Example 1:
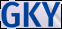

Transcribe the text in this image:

GKY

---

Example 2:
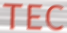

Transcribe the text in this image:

TEC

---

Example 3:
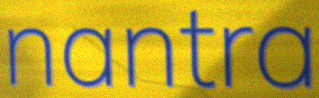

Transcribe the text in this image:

nantra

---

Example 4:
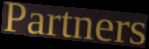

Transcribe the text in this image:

Partners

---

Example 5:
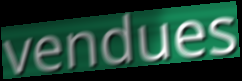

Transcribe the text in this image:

vendues